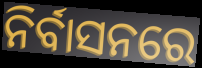
ନିର୍ବାସନରେ